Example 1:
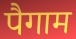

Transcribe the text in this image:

पैगाम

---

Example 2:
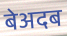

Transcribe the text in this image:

बेअदब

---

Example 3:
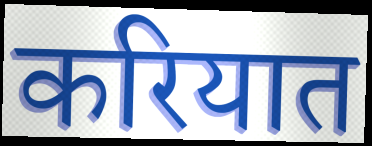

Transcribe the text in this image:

करियात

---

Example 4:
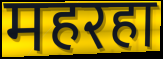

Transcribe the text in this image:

महरहा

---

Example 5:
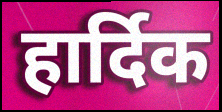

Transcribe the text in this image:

हार्दिक